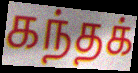
கந்தக்